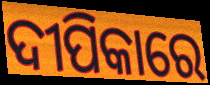
ଦୀପିକାରେ